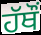
ਹੱਥੌਂ